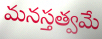
మనస్తత్వమే